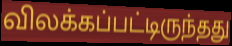
விலக்கப்பட்டிருந்தது